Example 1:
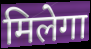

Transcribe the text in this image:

मिलेगा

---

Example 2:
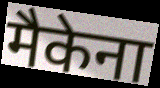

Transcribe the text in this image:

मैकेना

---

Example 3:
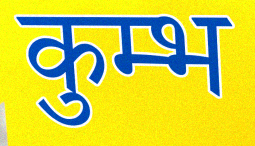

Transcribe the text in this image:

कुम्भ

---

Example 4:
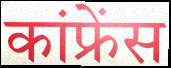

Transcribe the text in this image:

कांफ्रेंस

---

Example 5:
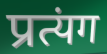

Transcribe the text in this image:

प्रत्यंग